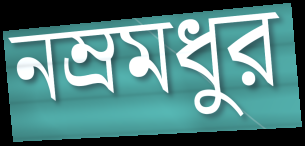
নম্রমধুর